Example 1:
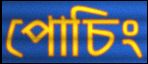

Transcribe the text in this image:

পোচিং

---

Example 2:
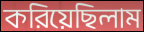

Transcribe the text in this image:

করিয়েছিলাম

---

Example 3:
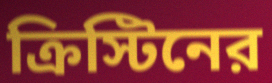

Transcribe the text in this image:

ক্রিস্টিনের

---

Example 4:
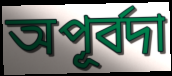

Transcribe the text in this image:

অপূর্বদা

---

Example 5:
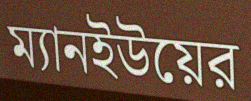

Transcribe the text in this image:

ম্যানইউয়ের